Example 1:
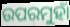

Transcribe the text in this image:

ଉପରମୁହାଁ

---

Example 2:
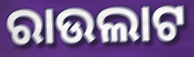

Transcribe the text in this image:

ରାଉଲାଟ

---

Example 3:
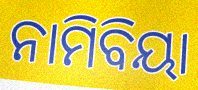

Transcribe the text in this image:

ନାମିବିୟା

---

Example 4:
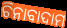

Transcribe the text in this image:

ଚିନାବାଦାମ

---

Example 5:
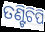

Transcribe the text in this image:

ତଣ୍ଟିଚିପି